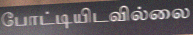
போட்டியிடவில்லை